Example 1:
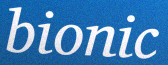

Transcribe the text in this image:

bionic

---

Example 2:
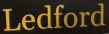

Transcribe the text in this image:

Ledford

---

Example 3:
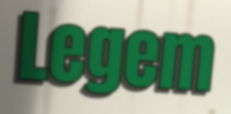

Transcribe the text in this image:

Legem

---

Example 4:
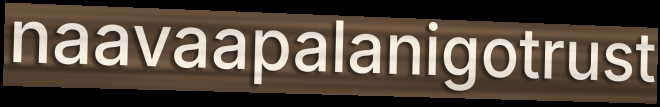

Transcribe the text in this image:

naavaapalanigotrust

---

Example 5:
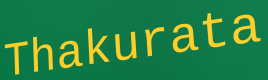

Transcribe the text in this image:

Thakurata